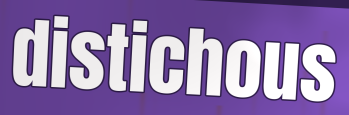
distichous